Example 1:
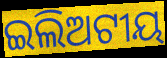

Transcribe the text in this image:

ଇଲିଅଟୀୟ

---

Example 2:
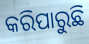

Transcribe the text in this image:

କରିପାରୁଛି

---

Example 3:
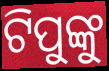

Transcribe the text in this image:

ଟିପୁଙ୍କୁ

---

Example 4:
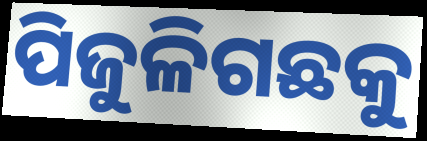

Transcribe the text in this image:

ପିଜୁଳିଗଛକୁ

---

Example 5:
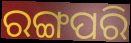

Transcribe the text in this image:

ରଙ୍ଗପରି